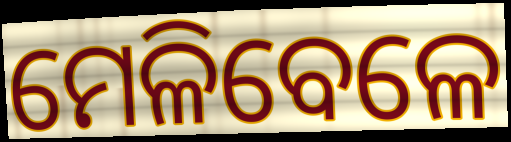
ମେଳିବେଳେ